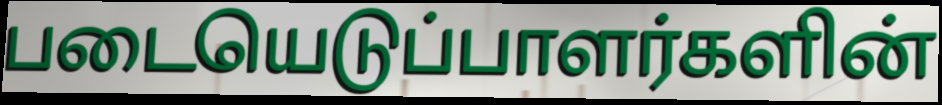
படையெடுப்பாளர்களின்